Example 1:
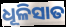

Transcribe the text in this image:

ଧୂଳିସାତ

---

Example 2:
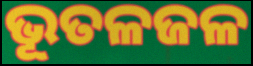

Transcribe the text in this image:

ଭୂତଳଜଳ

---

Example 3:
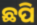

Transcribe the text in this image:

ଛପି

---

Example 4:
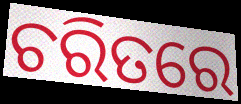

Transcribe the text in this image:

ଚରିତରେ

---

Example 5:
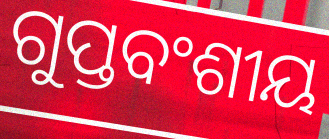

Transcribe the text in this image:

ଗୁପ୍ତବଂଶୀୟ